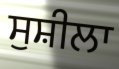
ਸੁਸ਼ੀਲਾ